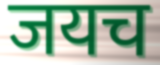
जयच